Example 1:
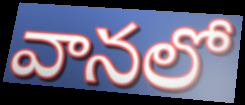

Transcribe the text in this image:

వానలో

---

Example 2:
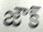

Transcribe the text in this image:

జౌక్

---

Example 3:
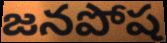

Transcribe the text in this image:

జనపోష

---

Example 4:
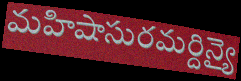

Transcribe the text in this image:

మహిషాసురమర్దిన్యై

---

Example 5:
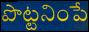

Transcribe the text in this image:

పొట్టనింపే